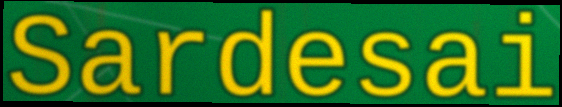
Sardesai